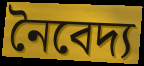
নৈবেদ্য